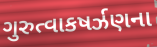
ગુરુત્વાકષર્ઝણના